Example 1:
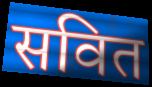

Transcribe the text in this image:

सवित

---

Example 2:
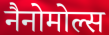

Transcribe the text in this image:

नैनोमोल्स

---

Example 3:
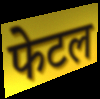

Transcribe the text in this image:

फेटल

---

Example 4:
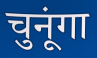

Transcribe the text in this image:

चुनूंगा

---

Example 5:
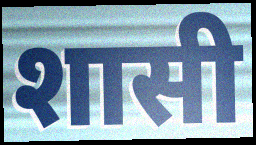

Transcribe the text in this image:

शासी